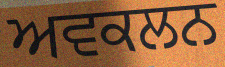
ਅਵਕਲਨ